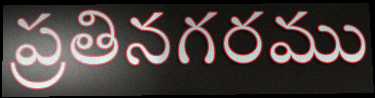
ప్రతినగరము